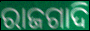
ରାଜଗାଦି